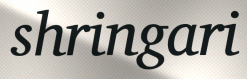
shringari